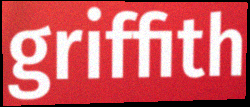
griffith